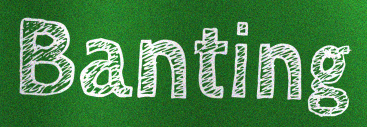
Banting